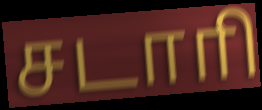
சடாரி